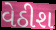
વેઠીશ